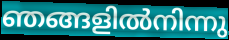
ഞങ്ങളിൽനിന്നു